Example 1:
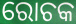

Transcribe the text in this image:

ରୋଚକ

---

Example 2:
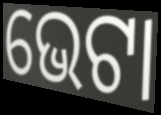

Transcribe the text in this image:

ଭେଟା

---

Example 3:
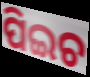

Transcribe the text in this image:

ପିଇଚ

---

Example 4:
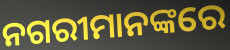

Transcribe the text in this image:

ନଗରୀମାନଙ୍କରେ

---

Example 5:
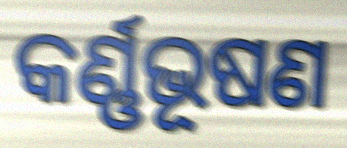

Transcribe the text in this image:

କର୍ଣ୍ଣଭୂଷଣ